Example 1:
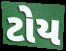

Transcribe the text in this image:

ટોય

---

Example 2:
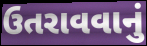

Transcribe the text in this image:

ઉતરાવવાનું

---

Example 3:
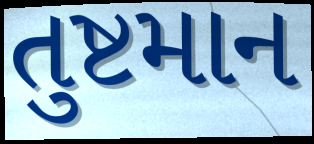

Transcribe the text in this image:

તુષ્ટમાન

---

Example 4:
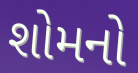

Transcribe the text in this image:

શોમનો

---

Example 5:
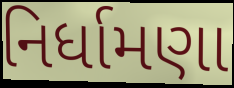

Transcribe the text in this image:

નિર્ધામણા